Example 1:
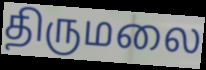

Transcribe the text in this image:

திருமலை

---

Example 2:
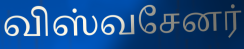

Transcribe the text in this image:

விஸ்வசேனர்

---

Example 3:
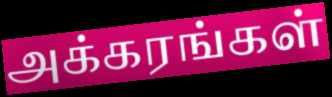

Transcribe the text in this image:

அக்கரங்கள்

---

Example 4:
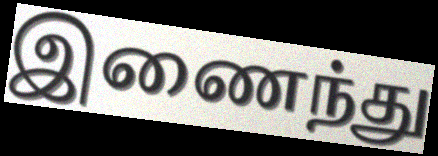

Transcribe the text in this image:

இணைந்து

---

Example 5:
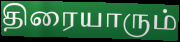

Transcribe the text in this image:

திரையாரும்